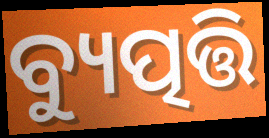
ବ୍ୟୁତ୍ପତ୍ତି